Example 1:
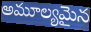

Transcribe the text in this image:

అమూల్యమైన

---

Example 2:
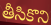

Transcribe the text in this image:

తీసికొని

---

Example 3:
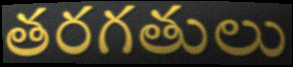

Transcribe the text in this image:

తరగతులు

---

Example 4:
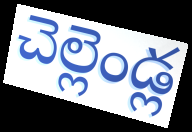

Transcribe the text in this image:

చెల్లెండ్ల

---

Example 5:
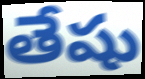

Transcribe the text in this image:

తేషు